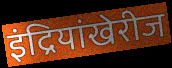
इंद्रियांखेरीज